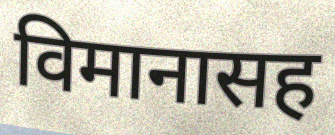
विमानासह